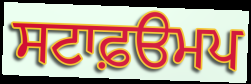
ਸਟਾਫ਼ੳਮਪ